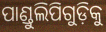
ପାଣ୍ଡୁଲିପିଗୁଡ଼ିକୁ